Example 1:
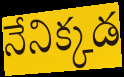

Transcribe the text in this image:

నేనిక్కడ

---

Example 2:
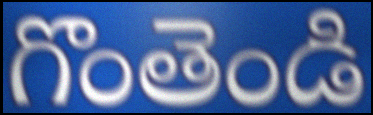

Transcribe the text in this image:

గొంతెండి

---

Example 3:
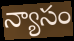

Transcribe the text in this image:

న్యాసం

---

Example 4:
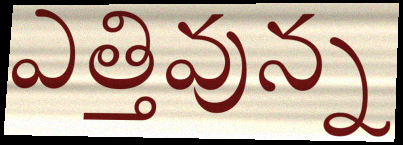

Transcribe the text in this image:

ఎత్తివున్న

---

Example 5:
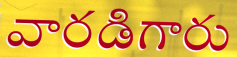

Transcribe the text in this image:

వారడిగారు